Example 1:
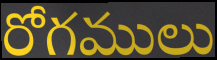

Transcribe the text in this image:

రోగములు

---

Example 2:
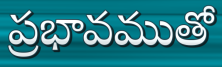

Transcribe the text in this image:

ప్రభావముతో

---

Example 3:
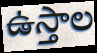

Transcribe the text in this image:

ఉస్తాల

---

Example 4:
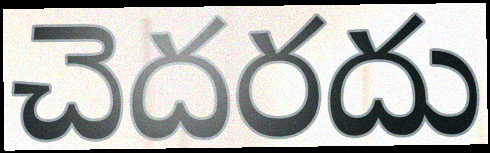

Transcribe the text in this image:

చెదరదు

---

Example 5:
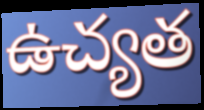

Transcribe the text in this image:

ఉచ్యత